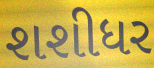
શશીધર